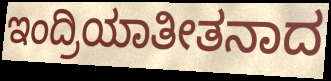
ಇಂದ್ರಿಯಾತೀತನಾದ